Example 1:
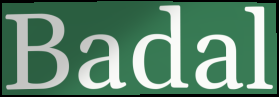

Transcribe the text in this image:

Badal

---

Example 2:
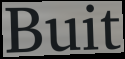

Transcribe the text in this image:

Buit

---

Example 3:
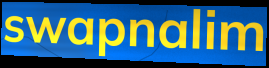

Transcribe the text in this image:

swapnalim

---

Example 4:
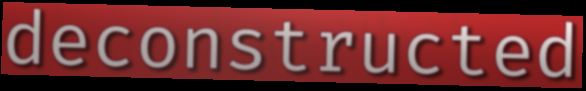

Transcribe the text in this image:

deconstructed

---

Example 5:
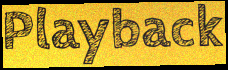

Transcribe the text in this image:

Playback